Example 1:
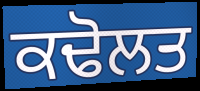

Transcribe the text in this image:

ਕਢੋਲਤ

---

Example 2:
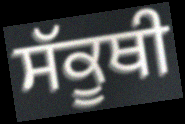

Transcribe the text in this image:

ਸੱਕੂਥੀ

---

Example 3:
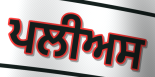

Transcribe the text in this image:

ਪਲੀਅਸ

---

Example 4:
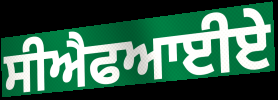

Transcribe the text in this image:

ਸੀਐਫਆਈਏ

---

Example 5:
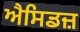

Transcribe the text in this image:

ਐਸਿਡਜ਼